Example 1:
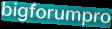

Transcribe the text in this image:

bigforumpro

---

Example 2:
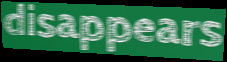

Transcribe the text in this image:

disappears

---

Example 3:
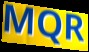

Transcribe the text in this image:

MQR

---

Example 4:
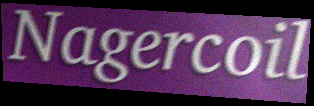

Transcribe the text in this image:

Nagercoil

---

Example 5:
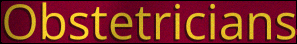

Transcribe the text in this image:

Obstetricians